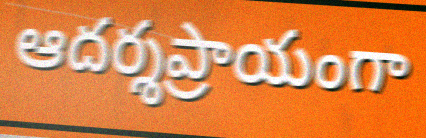
ఆదర్శప్రాయంగా